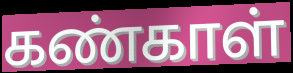
கண்காள்